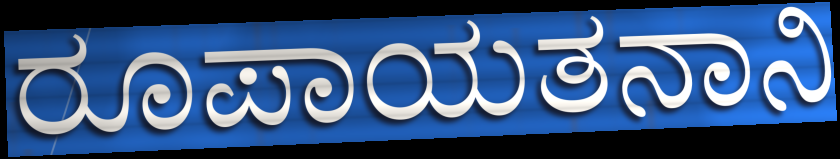
ರೂಪಾಯತನಾನಿ